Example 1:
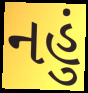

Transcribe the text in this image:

નહું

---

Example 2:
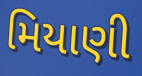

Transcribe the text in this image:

મિયાણી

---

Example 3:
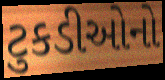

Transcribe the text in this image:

ટુકડીઓનો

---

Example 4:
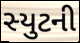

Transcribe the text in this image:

સ્યુટની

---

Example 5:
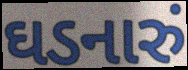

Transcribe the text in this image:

ઘડનારું